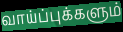
வாய்ப்புக்களும்